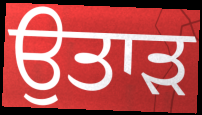
ਉਤਾਡ਼